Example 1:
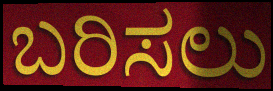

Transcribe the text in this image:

ಬರಿಸಲು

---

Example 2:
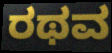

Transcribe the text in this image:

ರಥವ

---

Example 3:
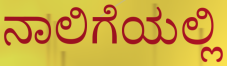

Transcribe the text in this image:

ನಾಲಿಗೆಯಲ್ಲಿ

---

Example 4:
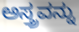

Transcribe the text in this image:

ಅಸ್ತ್ರವನ್ನು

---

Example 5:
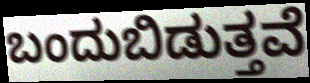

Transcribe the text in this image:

ಬಂದುಬಿಡುತ್ತವೆ